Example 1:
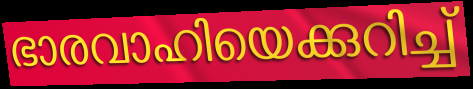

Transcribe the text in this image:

ഭാരവാഹിയെക്കുറിച്ച്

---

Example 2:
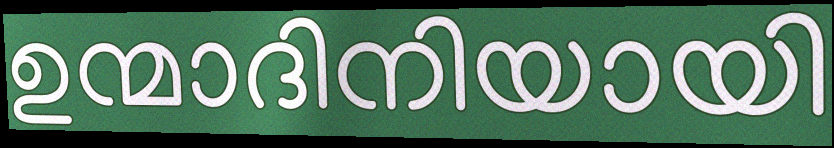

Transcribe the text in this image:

ഉന്മാദിനിയായി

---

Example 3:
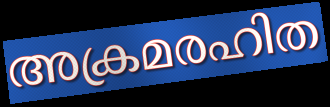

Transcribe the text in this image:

അക്രമരഹിത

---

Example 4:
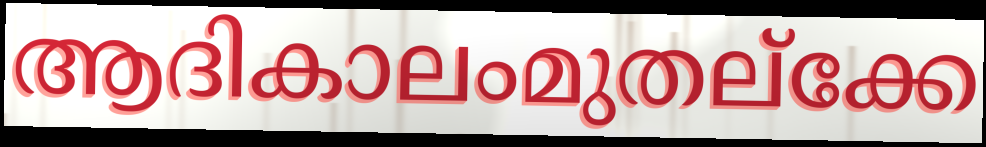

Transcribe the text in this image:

ആദികാലംമുതല്ക്കേ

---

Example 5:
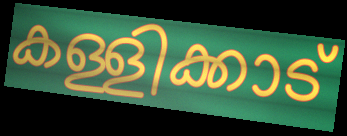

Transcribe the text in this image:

കള്ളിക്കാട്